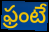
ఫ్రంటే